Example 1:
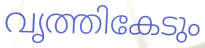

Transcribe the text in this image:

വൃത്തികേടും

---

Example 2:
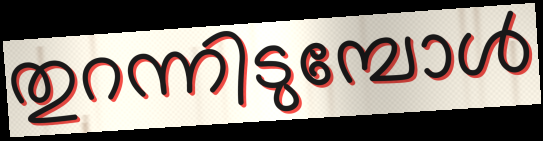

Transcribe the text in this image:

തുറന്നിടുമ്പോൾ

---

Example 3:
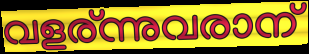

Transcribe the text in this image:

വളര്ന്നുവരാന്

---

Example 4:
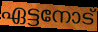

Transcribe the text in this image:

ഏട്ടനോട്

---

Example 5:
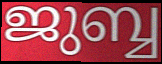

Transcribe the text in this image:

ജുബ്ബ